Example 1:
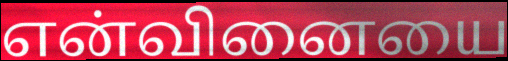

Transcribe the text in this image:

என்வினையை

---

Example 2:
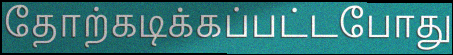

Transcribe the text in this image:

தோற்கடிக்கப்பட்டபோது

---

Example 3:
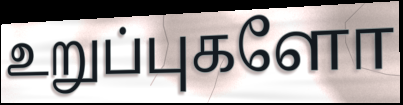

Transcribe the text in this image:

உறுப்புகளோ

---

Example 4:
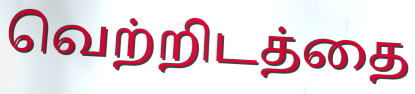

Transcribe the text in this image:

வெற்றிடத்தை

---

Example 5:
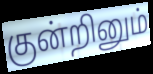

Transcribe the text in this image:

குன்றினும்